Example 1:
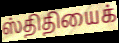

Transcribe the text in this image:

ஸ்திதியைக்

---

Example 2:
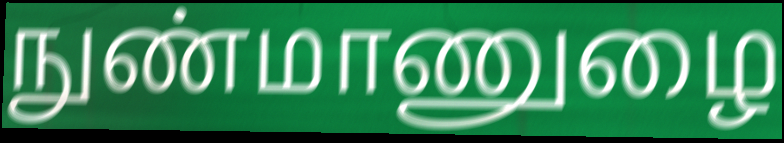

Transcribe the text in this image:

நுண்மாணுழை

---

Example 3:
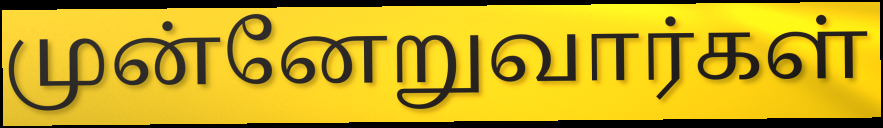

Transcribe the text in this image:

முன்னேறுவார்கள்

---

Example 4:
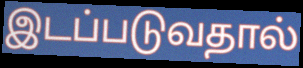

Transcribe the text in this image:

இடப்படுவதால்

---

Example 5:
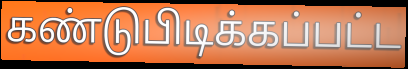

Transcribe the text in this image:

கண்டுபிடிக்கப்பட்ட